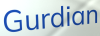
Gurdian